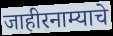
जाहीरनाम्याचे